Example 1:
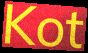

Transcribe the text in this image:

Kot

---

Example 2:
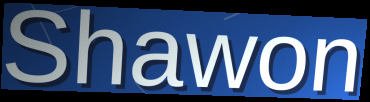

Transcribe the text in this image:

Shawon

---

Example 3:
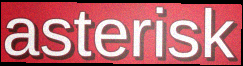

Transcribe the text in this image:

asterisk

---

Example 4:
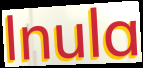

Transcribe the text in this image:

Inula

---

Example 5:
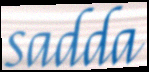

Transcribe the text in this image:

sadda